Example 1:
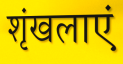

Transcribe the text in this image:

शृंखलाएं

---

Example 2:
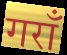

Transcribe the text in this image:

गराँ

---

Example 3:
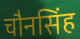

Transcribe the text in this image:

चौनसिंह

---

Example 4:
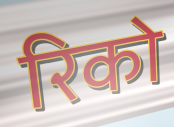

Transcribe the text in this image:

रिको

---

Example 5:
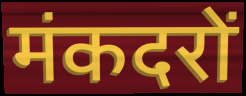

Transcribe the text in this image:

मंकदरों